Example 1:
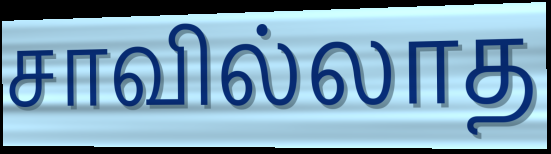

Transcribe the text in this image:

சாவில்லாத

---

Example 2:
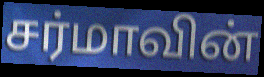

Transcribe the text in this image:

சர்மாவின்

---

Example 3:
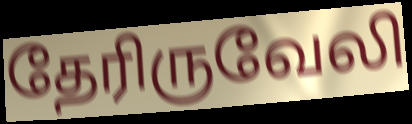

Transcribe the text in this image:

தேரிருவேலி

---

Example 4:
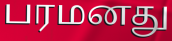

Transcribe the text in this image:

பரமனது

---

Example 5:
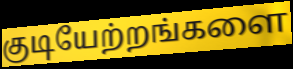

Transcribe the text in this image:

குடியேற்றங்களை